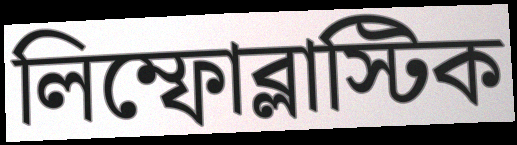
লিম্ফোব্লাস্টিক